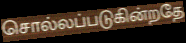
சொல்லப்படுகின்றதே